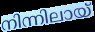
നിന്നിലായ്